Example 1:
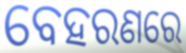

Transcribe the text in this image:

ବେହରଣରେ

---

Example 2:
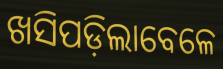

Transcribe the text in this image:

ଖସିପଡ଼ିଲାବେଳେ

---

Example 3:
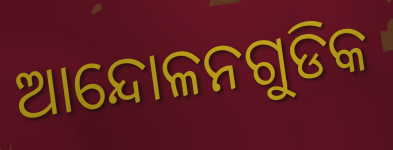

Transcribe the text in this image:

ଆନ୍ଦୋଳନଗୁଡିକ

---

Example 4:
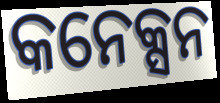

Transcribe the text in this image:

କନେକ୍ସନ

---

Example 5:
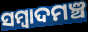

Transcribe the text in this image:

ସମ୍ୱାଦମଞ୍ଚ